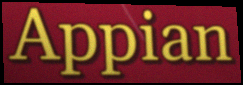
Appian